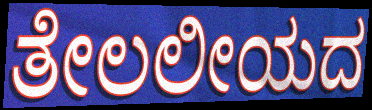
ತೇಲಲೀಯದ